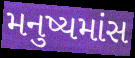
મનુષ્યમાંસ